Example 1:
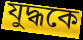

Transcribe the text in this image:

যুদ্ধকে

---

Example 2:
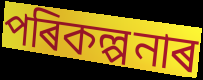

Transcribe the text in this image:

পৰিকল্পনাৰ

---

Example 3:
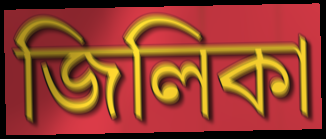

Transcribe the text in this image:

জিলিকা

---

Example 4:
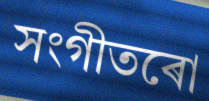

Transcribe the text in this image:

সংগীতৰো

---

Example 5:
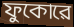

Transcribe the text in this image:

ফুকোৱে